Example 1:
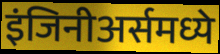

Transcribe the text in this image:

इंजिनीअर्समध्ये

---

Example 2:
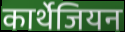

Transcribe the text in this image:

कार्थेजियन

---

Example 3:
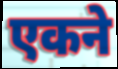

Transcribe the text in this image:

एकने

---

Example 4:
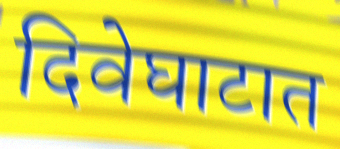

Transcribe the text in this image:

दिवेघाटात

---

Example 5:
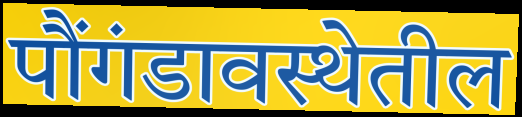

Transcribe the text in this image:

पौंगंडावस्थेतील